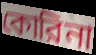
কোরিনা